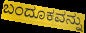
ಬಂದೂಕವನ್ನು